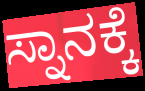
ಸ್ನಾನಕ್ಕೆ